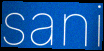
sani